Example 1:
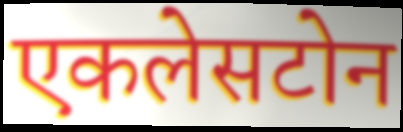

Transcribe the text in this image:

एकलेसटोन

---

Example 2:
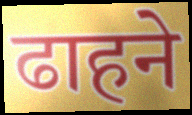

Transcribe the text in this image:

ढाहने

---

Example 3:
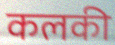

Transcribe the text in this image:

कलकी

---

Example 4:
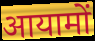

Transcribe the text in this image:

आयामों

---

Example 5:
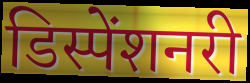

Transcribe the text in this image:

डिस्पेंशनरी